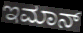
ಇಮಾನ್